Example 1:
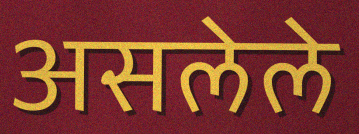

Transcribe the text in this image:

असलेले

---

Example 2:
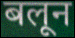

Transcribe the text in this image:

बलून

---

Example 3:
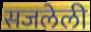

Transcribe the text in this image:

सजलेली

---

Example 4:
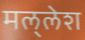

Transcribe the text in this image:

मल्लेश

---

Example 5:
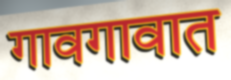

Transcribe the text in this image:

गावगावात